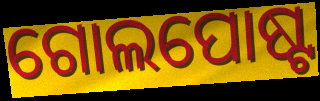
ଗୋଲପୋଷ୍ଟ